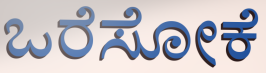
ಒರೆಸೋಕೆ